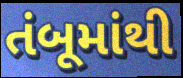
તંબૂમાંથી